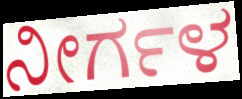
ನೀರ್ಗಳ